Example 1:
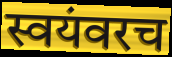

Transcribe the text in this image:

स्वयंवरच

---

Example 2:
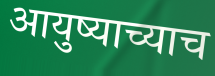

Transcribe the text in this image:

आयुष्याच्याच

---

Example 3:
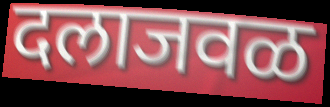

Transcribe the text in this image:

दलाजवळ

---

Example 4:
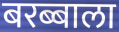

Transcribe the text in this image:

बरब्बाला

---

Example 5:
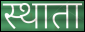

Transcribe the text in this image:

स्थाता